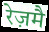
रेज़मै